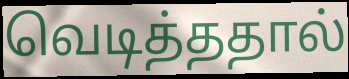
வெடித்ததால்